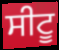
ਸੀਟੂ